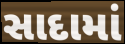
સાદામાં